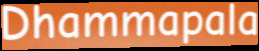
Dhammapala